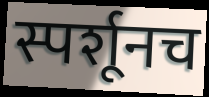
स्पर्शूनच